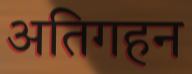
अतिगहन